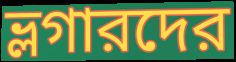
ভ্লগারদের